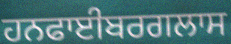
ਹਨਫਾਈਬਰਗਲਾਸ